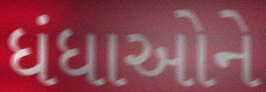
ધંધાઓને